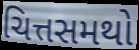
ચિત્તસમથો